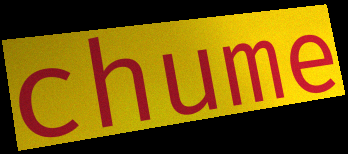
chume